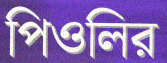
পিওলির